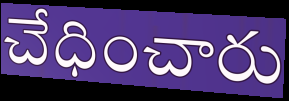
చేధించారు